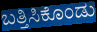
ಬತ್ತಿಸಿಕೊಂಡು